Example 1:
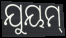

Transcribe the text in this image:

ଯୁୟମ୍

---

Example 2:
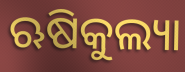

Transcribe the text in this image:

ଋଷିକୁଲ୍ୟା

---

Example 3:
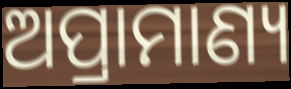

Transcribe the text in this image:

ଅପ୍ରାମାଣ୍ୟ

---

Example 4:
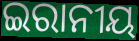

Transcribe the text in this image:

ଇରାନୀୟ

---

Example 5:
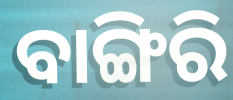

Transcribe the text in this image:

ବାଙ୍ଗିରି